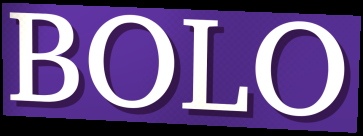
BOLO